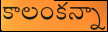
కాలంకన్నా